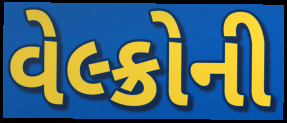
વેલ્ક્રોની